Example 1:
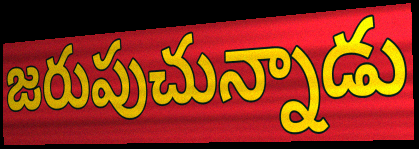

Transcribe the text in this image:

జరుపుచున్నాడు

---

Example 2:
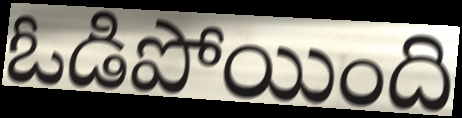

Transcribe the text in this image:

ఓడిపోయింది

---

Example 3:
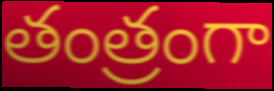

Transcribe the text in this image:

తంత్రంగా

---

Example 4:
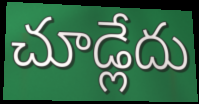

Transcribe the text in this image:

చూడ్లేదు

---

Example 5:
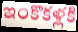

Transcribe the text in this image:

ఇంకొకళ్లకి